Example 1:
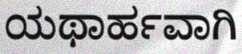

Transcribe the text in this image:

ಯಥಾರ್ಹವಾಗಿ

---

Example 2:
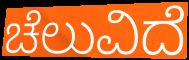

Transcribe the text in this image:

ಚೆಲುವಿದೆ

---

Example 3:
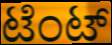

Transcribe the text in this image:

ಟೆಂಟ್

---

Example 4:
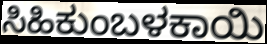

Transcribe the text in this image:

ಸಿಹಿಕುಂಬಳಕಾಯಿ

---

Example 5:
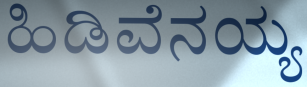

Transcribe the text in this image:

ಹಿಡಿವೆನಯ್ಯ